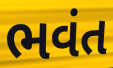
ભવંત